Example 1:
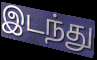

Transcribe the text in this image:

இடந்து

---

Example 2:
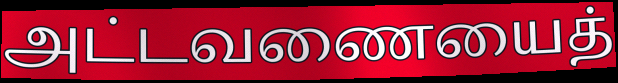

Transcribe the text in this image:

அட்டவணையைத்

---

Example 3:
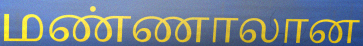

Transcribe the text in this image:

மண்ணாலான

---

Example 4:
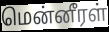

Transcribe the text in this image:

மென்னீரள்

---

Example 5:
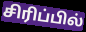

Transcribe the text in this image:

சிரிப்பில்